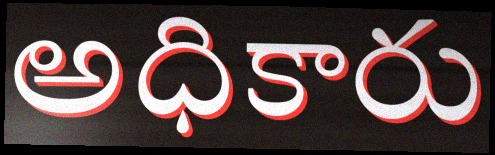
అధికారు